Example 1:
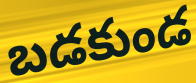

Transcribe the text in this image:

బడకుండ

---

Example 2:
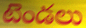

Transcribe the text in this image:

టెండలు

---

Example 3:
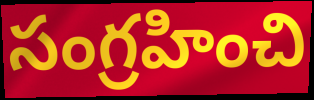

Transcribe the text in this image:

సంగ్రహించి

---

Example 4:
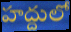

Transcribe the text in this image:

హద్దులో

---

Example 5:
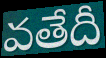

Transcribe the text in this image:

వతేదీ